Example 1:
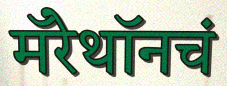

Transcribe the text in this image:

मॅरेथॉनचं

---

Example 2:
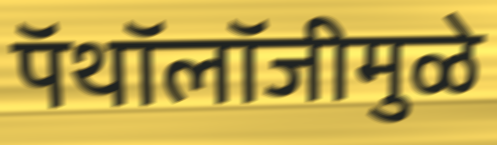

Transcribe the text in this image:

पॅथॉलॉजीमुळे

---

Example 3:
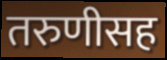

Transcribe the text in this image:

तरुणीसह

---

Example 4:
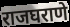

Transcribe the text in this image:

राजघराणे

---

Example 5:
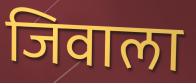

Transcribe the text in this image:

जिवाला